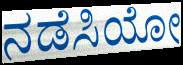
ನಡೆಸಿಯೋ